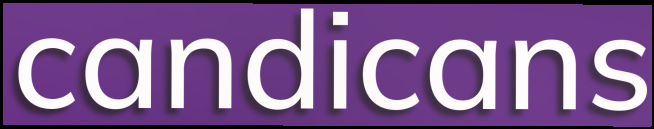
candicans